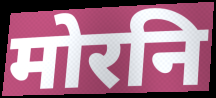
मोरनि